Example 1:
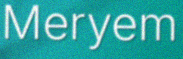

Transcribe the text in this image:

Meryem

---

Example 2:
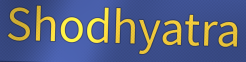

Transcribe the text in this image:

Shodhyatra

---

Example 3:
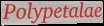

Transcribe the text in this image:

Polypetalae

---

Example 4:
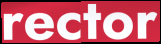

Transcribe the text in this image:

rector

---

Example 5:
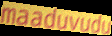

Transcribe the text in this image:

maaduvudu